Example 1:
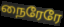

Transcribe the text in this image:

நைரேரே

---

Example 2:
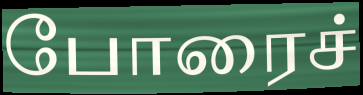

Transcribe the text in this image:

போரைச்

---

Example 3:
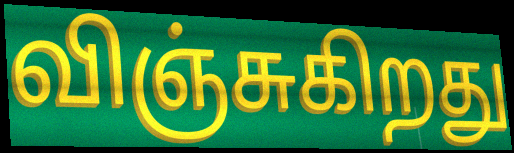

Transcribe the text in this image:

விஞ்சுகிறது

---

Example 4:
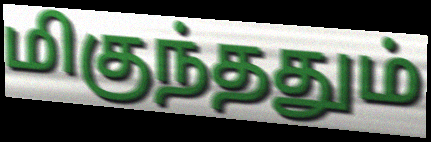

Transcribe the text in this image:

மிகுந்ததும்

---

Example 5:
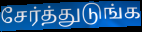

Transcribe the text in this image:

சேர்த்துடுங்க